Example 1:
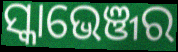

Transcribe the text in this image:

ସ୍କାଭେଞ୍ଜର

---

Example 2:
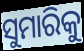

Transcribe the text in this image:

ସୁମାରିକୁ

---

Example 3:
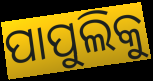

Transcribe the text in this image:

ପାପୁଲିକୁ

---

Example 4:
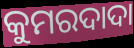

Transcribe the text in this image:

କୁମରଦାଦା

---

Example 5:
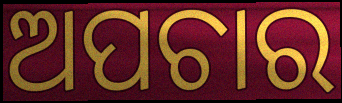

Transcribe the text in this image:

ଅପଚାର